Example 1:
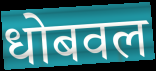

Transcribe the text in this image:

धोबवल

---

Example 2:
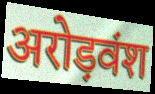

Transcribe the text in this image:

अरोड़वंश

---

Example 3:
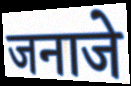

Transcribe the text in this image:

जनाजे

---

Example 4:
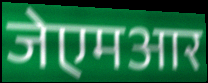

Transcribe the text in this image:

जेएमआर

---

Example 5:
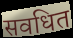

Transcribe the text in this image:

सवधित